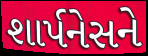
શાર્પનેસને